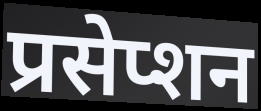
प्रसेप्शन